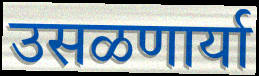
उसळणार्या